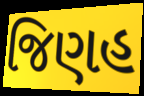
જિણહ